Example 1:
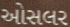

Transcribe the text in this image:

ઓસલર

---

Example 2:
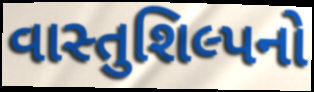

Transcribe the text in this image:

વાસ્તુશિલ્પનો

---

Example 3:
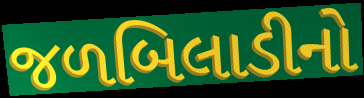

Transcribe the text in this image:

જળબિલાડીનો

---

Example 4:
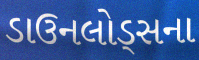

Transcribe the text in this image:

ડાઉનલોડ્સના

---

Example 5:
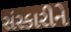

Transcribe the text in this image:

સંસ્કારીને